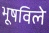
भूषविले